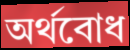
অৰ্থবোধ